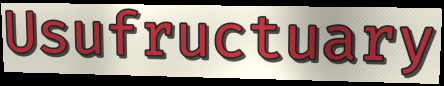
Usufructuary